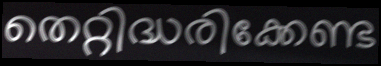
തെറ്റിദ്ധരിക്കേണ്ട